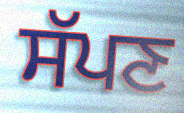
ਸੱਪਣ